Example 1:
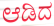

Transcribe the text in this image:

ಆಡಿದ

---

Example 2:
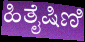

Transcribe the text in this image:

ಹಿತೈಷಿಣಿ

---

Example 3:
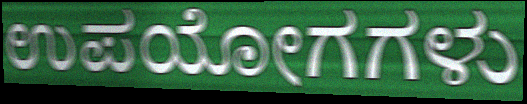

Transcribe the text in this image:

ಉಪಯೋಗಗಳು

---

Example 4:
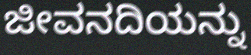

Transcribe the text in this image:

ಜೀವನದಿಯನ್ನು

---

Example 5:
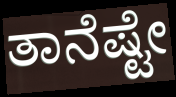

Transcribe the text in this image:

ತಾನೆಷ್ಟೇ